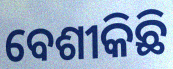
ବେଶୀକିଛି